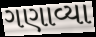
ગણાવ્યા